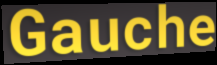
Gauche